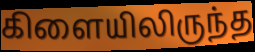
கிளையிலிருந்த